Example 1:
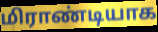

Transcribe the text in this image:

மிராண்டியாக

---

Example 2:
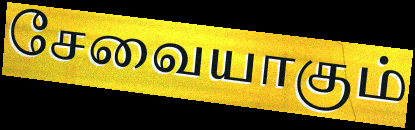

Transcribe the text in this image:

சேவையாகும்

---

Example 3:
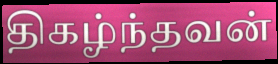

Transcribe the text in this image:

திகழ்ந்தவன்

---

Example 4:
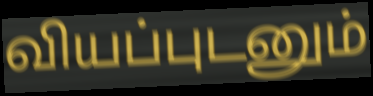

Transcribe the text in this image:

வியப்புடனும்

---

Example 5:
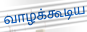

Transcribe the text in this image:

வாழக்கூடிய